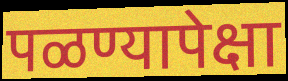
पळण्यापेक्षा